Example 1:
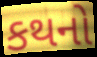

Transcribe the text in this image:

કથનો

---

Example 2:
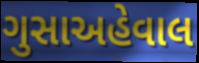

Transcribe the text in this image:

ગુસાઅહેવાલ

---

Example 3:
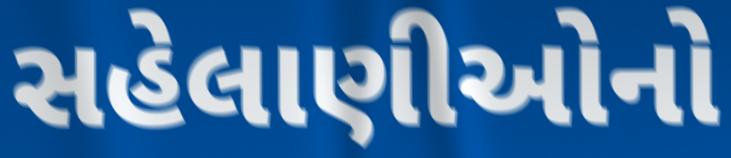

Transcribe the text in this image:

સહેલાણીઓનો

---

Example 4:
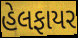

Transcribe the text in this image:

હેલફાયર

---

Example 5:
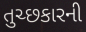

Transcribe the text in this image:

તુચ્છકારની